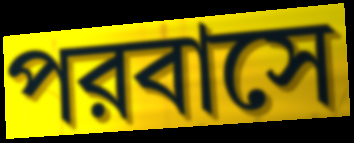
পরবাসে